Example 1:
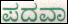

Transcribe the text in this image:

ಪದವಾ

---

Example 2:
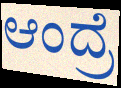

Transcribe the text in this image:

ಆಂದ್ರೆ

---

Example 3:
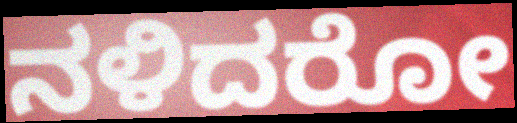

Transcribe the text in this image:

ನಳಿದರೋ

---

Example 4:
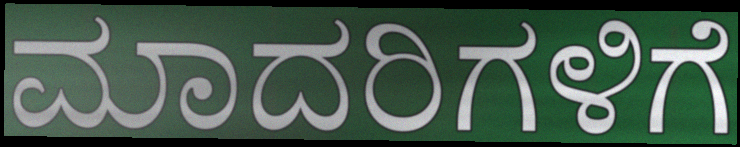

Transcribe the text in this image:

ಮಾದರಿಗಳಿಗೆ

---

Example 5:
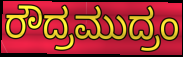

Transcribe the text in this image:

ರೌದ್ರಮುದ್ರಂ